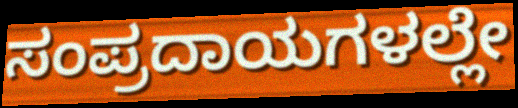
ಸಂಪ್ರದಾಯಗಳಲ್ಲೇ